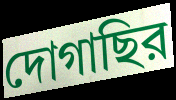
দোগাছির